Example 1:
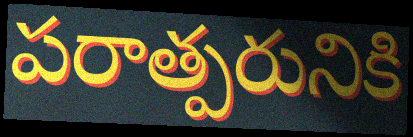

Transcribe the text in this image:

పరాత్పరునికి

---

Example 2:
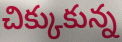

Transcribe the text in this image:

చిక్కుకున్న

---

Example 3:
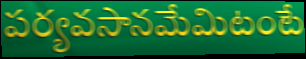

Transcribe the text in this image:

పర్యవసానమేమిటంటే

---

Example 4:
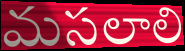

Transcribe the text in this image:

మసలాలి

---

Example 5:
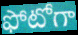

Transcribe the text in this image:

ఫోటోగా